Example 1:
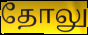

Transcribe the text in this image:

தோலு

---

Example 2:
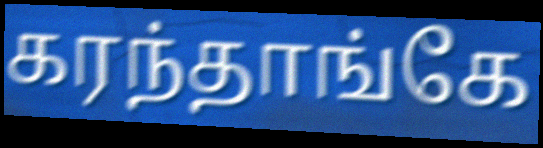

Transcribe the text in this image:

கரந்தாங்கே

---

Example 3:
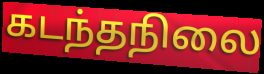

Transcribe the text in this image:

கடந்தநிலை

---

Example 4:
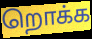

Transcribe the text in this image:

றொக்க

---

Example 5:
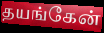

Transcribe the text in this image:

தயங்கேன்